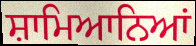
ਸ਼ਾਮਿਆਨਿਆਂ